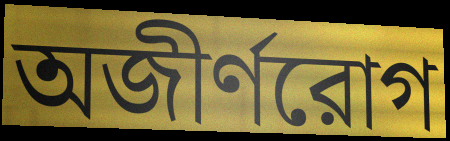
অজীর্ণরোগ